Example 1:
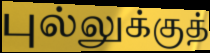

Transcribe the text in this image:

புல்லுக்குத்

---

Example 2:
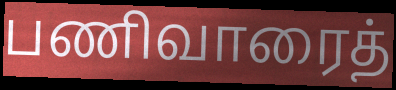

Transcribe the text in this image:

பணிவாரைத்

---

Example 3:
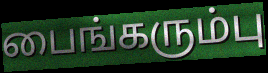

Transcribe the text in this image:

பைங்கரும்பு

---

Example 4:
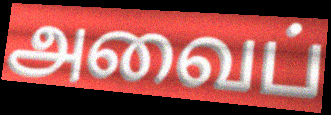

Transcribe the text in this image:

அவைப்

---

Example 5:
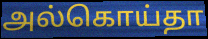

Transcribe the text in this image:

அல்கொய்தா